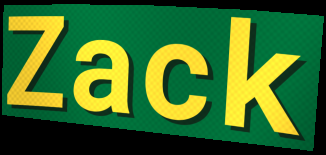
Zack